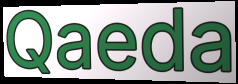
Qaeda